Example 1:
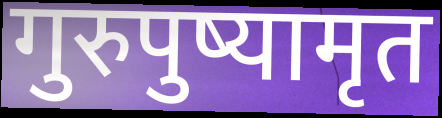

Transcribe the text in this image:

गुरुपुष्यामृत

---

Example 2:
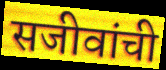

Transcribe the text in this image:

सजीवांची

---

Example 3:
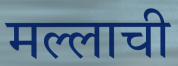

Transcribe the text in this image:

मल्लाची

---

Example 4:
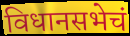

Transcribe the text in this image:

विधानसभेचं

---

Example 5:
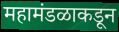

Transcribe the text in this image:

महामंडळाकडून